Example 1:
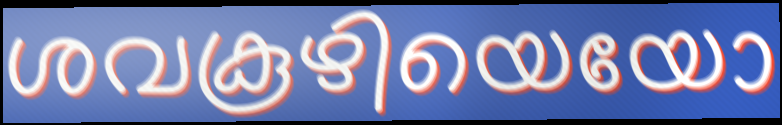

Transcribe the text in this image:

ശവകൂഴിയെയോ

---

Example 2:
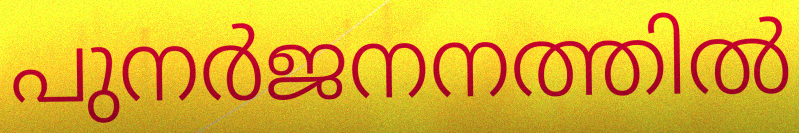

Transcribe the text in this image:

പുനർജനനത്തിൽ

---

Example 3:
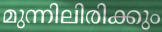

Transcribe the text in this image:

മുന്നിലിരിക്കും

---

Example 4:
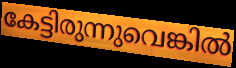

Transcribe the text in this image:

കേട്ടിരുന്നുവെങ്കിൽ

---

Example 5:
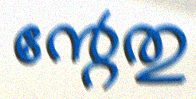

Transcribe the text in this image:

ന്റേതു